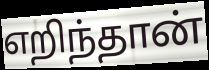
எறிந்தான்